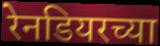
रेनडियरच्या